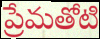
ప్రేమతోటి